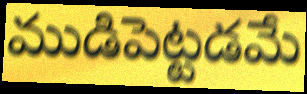
ముడిపెట్టడమే